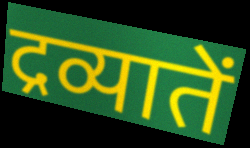
द्रव्यातें